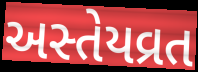
અસ્તેયવ્રત